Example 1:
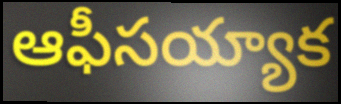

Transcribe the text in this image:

ఆఫీసయ్యాక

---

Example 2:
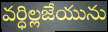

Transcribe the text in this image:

వర్ధిల్లజేయును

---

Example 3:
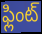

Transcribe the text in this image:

ఫ్లింట్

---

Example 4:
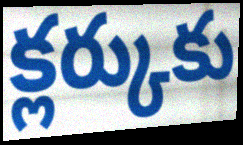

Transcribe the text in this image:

క్లర్కుకు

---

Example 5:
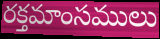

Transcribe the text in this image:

రక్తమాంసములు